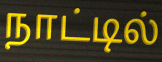
நாட்டில்